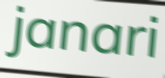
janari